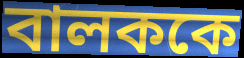
বালককে